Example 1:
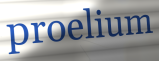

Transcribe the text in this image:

proelium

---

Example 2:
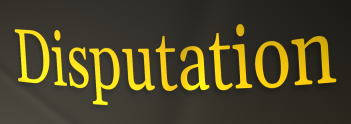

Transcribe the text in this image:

Disputation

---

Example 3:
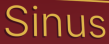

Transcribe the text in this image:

Sinus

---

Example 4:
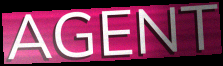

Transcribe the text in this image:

AGENT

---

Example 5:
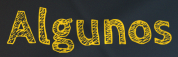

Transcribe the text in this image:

Algunos